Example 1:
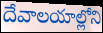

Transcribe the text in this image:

దేవాలయాల్లోని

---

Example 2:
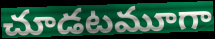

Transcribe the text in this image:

చూడటమూగా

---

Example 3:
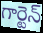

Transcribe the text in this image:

గార్టెన్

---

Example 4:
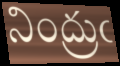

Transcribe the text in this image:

నింద్రుఁ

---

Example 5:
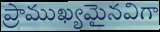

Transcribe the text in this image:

ప్రాముఖ్యమైనవిగా